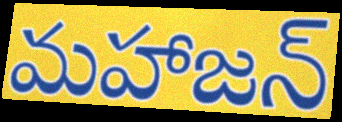
మహాజన్